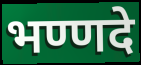
भण्णदे